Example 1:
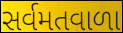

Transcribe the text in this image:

સર્વમતવાળા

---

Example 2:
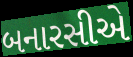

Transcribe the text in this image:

બનારસીએ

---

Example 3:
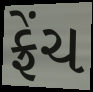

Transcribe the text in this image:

ફ્રેંચ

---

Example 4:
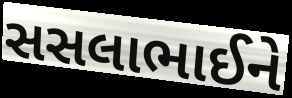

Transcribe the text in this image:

સસલાભાઈને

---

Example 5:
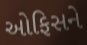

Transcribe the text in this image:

ઓફિસને